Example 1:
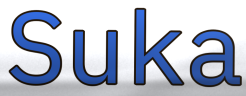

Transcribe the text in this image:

Suka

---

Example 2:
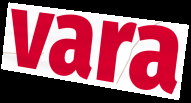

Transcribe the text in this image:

vara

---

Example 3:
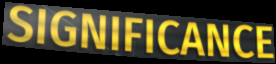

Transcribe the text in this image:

SIGNIFICANCE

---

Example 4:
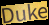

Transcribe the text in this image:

Duke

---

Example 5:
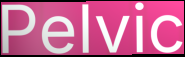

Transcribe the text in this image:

Pelvic